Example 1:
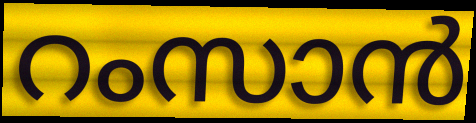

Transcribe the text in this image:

റംസാൻ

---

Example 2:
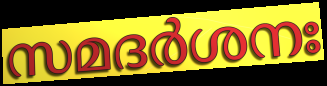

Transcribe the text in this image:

സമദർശനഃ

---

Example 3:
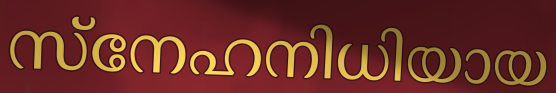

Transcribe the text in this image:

സ്നേഹനിധിയായ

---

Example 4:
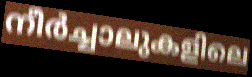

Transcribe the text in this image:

നീർച്ചാലുകളിലെ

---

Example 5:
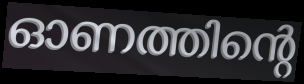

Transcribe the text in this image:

ഓണത്തിന്റെ